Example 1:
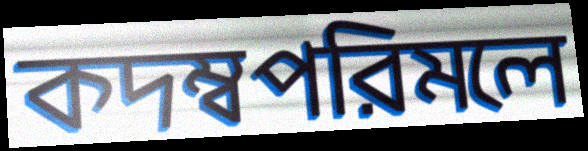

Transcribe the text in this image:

কদম্বপরিমলে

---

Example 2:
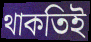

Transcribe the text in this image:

থাকতিই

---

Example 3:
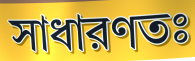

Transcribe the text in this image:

সাধারণতঃ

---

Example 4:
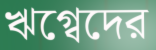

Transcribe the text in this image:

ঋগ্বেদের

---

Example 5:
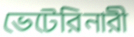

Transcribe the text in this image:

ভেটেরিনারী